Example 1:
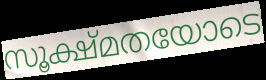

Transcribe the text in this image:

സൂക്ഷ്മതയോടെ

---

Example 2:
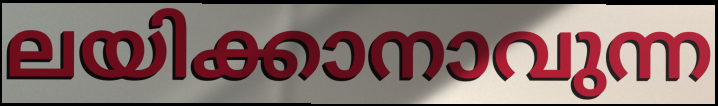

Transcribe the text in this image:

ലയിക്കാനാവുന്ന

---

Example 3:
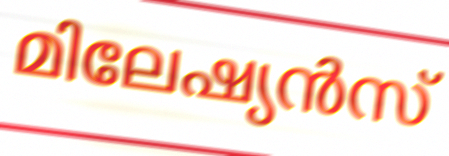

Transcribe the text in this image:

മിലേഷ്യൻസ്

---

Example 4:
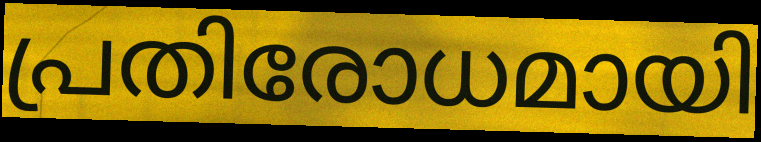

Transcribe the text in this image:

പ്രതിരോധമായി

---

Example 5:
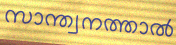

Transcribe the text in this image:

സാന്ത്വനത്താൽ